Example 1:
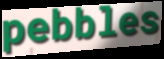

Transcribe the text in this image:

pebbles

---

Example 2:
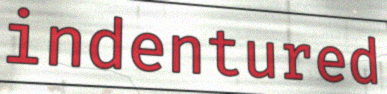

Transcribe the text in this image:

indentured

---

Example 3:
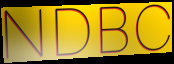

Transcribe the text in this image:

NDBC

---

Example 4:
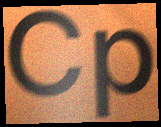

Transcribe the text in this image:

Cp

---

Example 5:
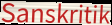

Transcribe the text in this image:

Sanskritik